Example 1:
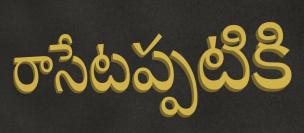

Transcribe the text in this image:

రాసేటప్పటికి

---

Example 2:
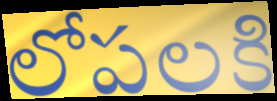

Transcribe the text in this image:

లోపలకి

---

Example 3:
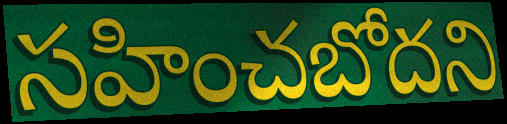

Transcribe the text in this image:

సహించబోదని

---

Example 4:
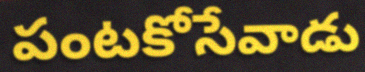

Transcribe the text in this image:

పంటకోసేవాడు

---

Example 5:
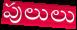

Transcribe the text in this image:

పులులు